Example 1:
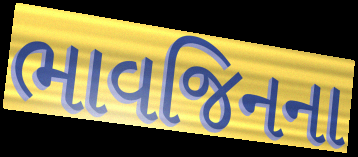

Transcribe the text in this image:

ભાવજિનના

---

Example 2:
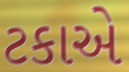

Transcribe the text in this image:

ટકાએ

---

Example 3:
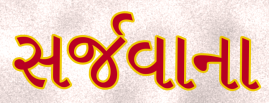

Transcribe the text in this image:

સર્જવાના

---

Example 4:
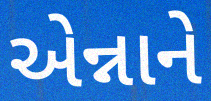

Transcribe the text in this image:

એન્નાને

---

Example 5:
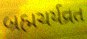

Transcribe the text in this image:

બ્રહ્મચર્યવ્રત